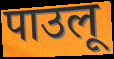
पाउलू